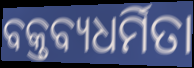
ବକ୍ତବ୍ୟଧର୍ମିତା